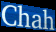
Chah